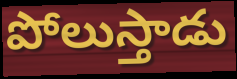
పోలుస్తాడు